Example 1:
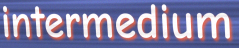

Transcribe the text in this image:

intermedium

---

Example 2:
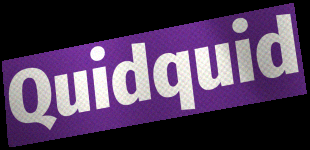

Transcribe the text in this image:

Quidquid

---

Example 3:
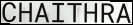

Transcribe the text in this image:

CHAITHRA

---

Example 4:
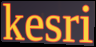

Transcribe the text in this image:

kesri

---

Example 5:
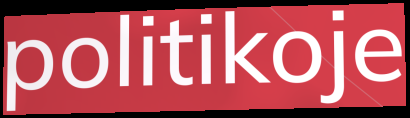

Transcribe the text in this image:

politikoje